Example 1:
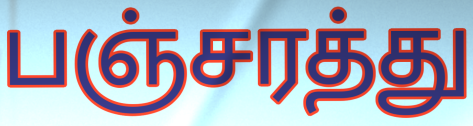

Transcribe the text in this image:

பஞ்சரத்து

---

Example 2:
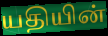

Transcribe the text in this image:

யதியின்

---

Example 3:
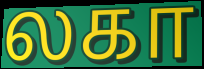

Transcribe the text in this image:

லகா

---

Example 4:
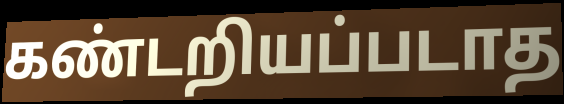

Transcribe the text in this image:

கண்டறியப்படாத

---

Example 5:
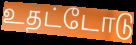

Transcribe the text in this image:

உதட்டோடு